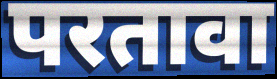
परतावा